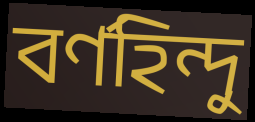
বৰ্ণহিন্দু